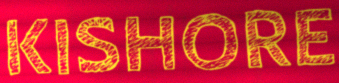
KISHORE